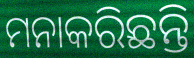
ମନାକରିଛନ୍ତି